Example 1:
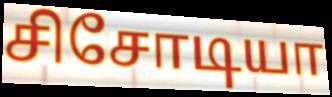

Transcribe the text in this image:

சிசோடியா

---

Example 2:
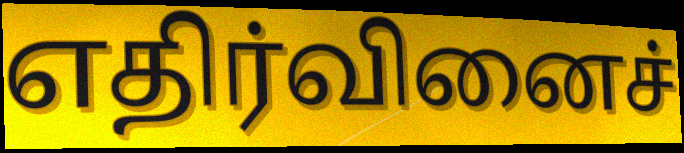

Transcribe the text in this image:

எதிர்வினைச்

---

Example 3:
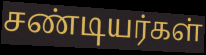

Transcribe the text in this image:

சண்டியர்கள்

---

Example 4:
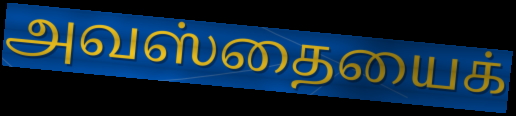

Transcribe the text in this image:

அவஸ்தையைக்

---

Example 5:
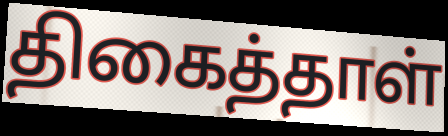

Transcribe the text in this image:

திகைத்தாள்